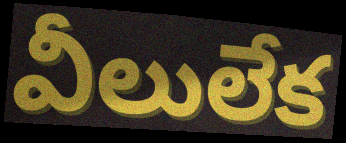
వీలులేక